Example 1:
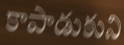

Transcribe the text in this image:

కాపాడుకుని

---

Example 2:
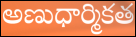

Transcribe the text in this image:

అణుధార్మికత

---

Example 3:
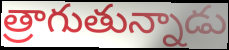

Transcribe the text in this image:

త్రాగుతున్నాడు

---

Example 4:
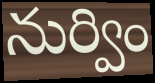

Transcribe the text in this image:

నుర్విం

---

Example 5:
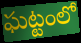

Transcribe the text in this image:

ఘట్టంలో